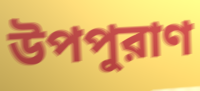
উপপুরাণ